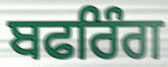
ਬਫਰਿੰਗ